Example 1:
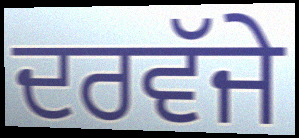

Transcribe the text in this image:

ਦਰਵੱਜੇ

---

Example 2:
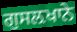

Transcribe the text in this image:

ਗੁਸਲ਼ਖਾਨੇ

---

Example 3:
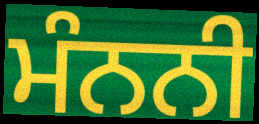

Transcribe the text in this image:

ਮੰਨਨੀ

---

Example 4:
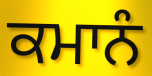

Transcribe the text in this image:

ਕਮਾਨੰ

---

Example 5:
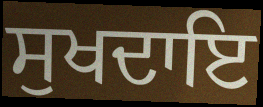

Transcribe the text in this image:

ਸੁਖਦਾਇ